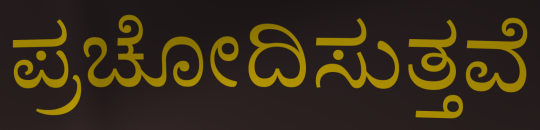
ಪ್ರಚೋದಿಸುತ್ತವೆ